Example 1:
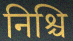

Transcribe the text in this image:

निश्चि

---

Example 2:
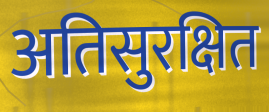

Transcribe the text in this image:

अतिसुरक्षित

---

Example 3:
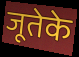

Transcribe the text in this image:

जूतेके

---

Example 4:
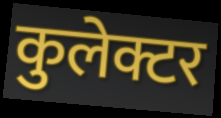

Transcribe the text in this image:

कुलेक्टर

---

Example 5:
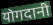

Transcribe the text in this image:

योगदानी